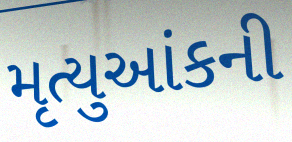
મૃત્યુઆંકની